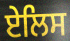
ਏਲਿਸ